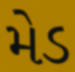
મેડ